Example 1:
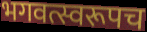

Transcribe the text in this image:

भगवत्स्वरूपच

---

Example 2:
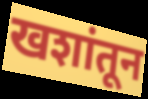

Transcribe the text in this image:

खशांतून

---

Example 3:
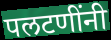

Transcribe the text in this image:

पलटणींनी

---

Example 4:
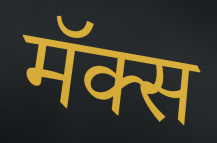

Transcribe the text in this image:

मॅक्स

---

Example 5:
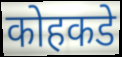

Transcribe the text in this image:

कोहकडे